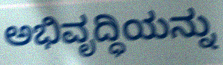
ಅಭಿವೃದ್ಧಿಯನ್ನು